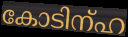
കോടിന്ഹ